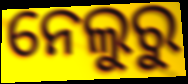
ନେଲୁରୁ